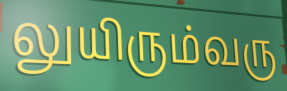
லுயிரும்வரு